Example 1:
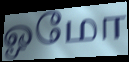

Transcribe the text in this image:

ஓமோ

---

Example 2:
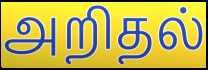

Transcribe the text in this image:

அறிதல்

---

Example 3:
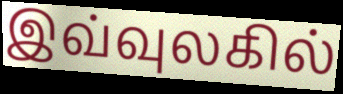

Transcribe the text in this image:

இவ்வுலகில்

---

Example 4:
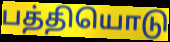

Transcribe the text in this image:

பத்தியொடு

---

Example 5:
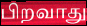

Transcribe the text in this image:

பிறவாது